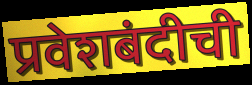
प्रवेशबंदीची